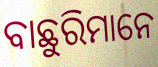
ବାଛୁରିମାନେ